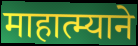
माहात्म्याने